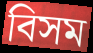
বিসম